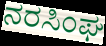
ನರಸಿಂಘ